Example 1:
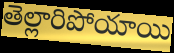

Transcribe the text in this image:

తెల్లారిపోయాయి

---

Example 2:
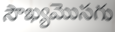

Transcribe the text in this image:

సౌఖ్యమొసగు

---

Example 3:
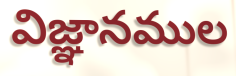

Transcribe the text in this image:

విజ్ఞానముల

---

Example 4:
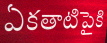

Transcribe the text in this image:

ఏకతాటిపైకి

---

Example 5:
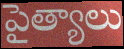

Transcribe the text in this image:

పైత్యాలు